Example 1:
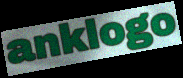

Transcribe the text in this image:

anklogo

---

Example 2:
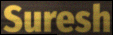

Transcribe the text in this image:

Suresh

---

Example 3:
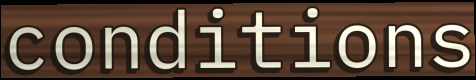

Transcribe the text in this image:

conditions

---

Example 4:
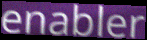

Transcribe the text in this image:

enabler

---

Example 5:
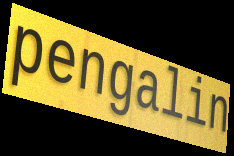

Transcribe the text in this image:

pengalin